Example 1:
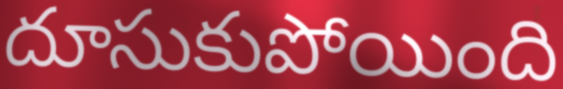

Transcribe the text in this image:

దూసుకుపోయింది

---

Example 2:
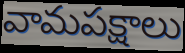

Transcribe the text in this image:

వామపక్షాలు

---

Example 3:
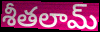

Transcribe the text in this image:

శీతలామ్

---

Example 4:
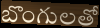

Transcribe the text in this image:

బొంగులతో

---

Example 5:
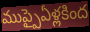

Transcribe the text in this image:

ముప్పైఏళ్లకింద